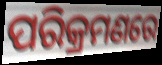
ପରିକ୍ରମଣରେ